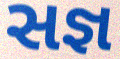
સજ્ઞ